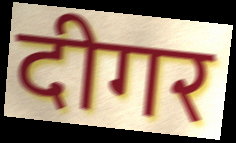
दीगर